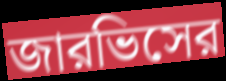
জারভিসের